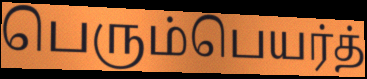
பெரும்பெயர்த்